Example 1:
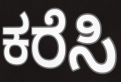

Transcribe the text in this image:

ಕರೆಸಿ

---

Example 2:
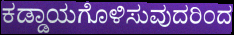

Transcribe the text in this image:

ಕಡ್ಡಾಯಗೊಳಿಸುವುದರಿಂದ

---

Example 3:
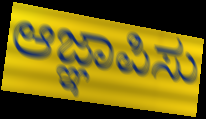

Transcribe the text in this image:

ಆಜ್ಞಾಪಿಸು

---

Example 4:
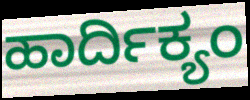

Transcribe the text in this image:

ಹಾರ್ದಿಕ್ಯಂ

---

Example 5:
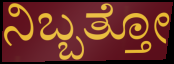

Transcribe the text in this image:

ನಿಬ್ಬತ್ತೋ